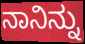
ನಾನಿನ್ನು